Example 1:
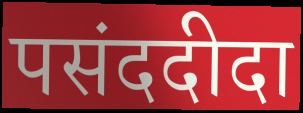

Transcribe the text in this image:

पसंददीदा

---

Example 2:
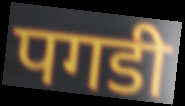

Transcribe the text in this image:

पगडी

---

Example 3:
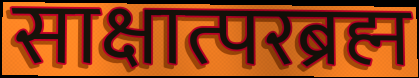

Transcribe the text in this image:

साक्षात्परब्रह्म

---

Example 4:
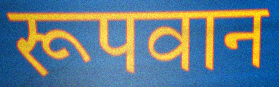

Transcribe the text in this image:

रूपवान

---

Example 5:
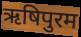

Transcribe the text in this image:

ऋषिपुरम